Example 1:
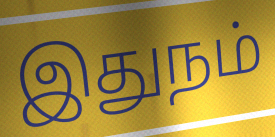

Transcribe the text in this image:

இதுநம்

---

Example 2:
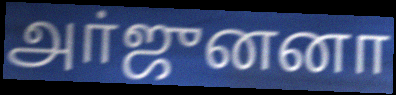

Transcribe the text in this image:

அர்ஜுனனா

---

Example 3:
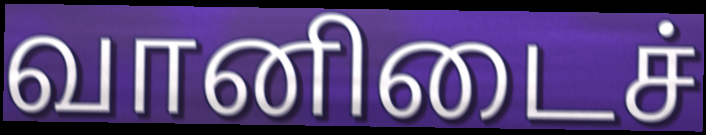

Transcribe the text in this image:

வானிடைச்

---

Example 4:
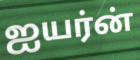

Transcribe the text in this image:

ஐயர்ன்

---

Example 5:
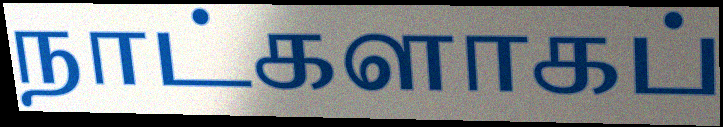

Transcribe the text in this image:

நாட்களாகப்